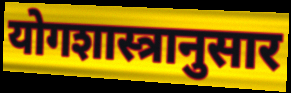
योगशास्त्रानुसार